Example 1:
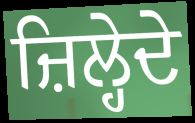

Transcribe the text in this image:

ਜ਼ਿਲ੍ਹੇਦੇ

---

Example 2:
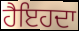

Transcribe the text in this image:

ਹੈਇਹਦਾ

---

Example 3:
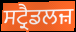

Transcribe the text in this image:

ਸਟ੍ਰੈਡਲਜ਼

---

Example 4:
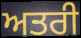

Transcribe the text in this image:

ਅਤਰੀ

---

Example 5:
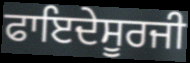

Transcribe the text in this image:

ਫਾਇਦੇਸੂਰਜੀ